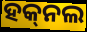
ହକ୍‌ନଲ